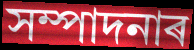
সম্পাদনাৰ